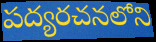
పద్యరచనలోని